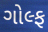
ગોલ્ફ